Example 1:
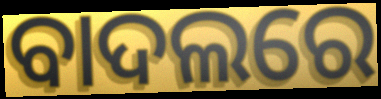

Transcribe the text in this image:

ବାଦଲରେ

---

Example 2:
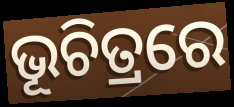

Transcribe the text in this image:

ଭୂଚିତ୍ରରେ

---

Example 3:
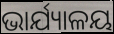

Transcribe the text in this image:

ଭାର୍ଯ୍ୟାଳୟ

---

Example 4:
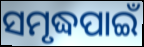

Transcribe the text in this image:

ସମୃଦ୍ଧପାଇଁ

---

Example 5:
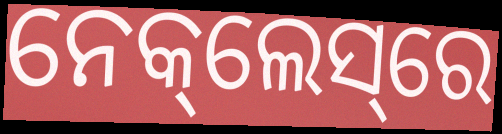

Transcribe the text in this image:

ନେକ୍‌ଲେସ୍‌ରେ